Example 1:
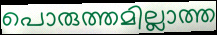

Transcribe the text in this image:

പൊരുത്തമില്ലാത്ത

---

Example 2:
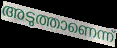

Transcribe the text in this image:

അടുത്താണെന്ന്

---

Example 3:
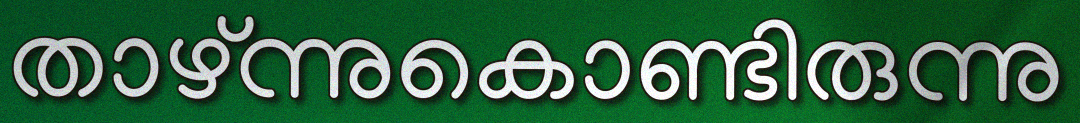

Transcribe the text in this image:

താഴ്ന്നുകൊണ്ടിരുന്നു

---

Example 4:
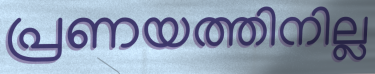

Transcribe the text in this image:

പ്രണയത്തിനില്ല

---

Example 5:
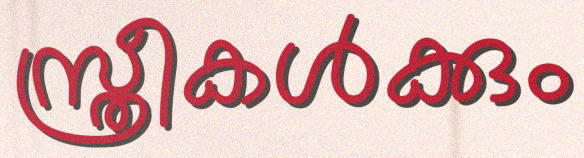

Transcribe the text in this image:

സ്ത്രീകൾക്കും